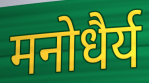
मनोधैर्य